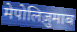
मेपोलिज़ुमाब